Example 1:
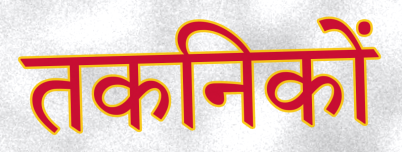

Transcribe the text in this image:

तकनिकों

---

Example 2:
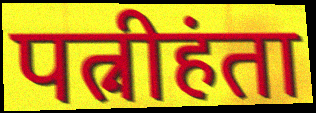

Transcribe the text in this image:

पत्नीहंता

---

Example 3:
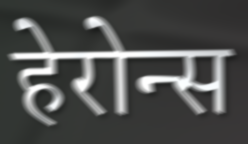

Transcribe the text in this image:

हेरोन्स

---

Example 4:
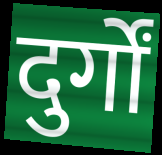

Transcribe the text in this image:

दुर्गों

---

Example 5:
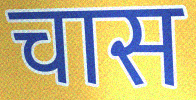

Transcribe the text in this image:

चास